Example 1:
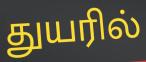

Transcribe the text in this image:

துயரில்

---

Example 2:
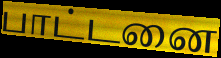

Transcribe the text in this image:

பாட்டனை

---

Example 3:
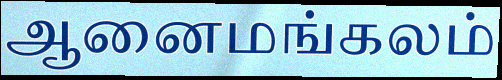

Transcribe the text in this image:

ஆனைமங்கலம்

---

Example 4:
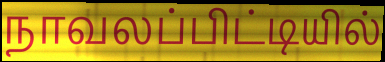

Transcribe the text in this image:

நாவலப்பிட்டியில்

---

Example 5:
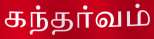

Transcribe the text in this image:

கந்தர்வம்